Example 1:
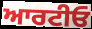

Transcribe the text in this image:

ਆਰਟੀਓ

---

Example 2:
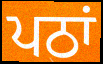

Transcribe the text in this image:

ਪਠਾਂ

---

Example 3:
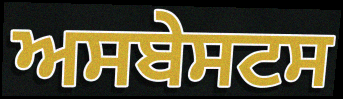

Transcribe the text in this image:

ਅਸਬੇਸਟਸ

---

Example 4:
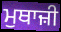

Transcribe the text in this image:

ਮੁਥਾਜ਼ੀ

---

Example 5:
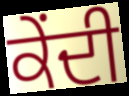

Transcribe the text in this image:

ਕੇਂਦੀ